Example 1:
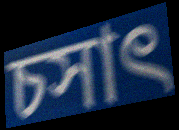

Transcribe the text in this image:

চসাৎ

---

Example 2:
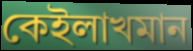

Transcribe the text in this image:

কেইলাখমান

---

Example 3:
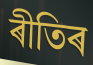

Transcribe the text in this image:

ৰীতিৰ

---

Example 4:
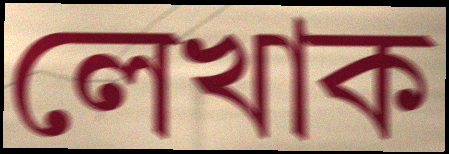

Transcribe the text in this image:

লেখাক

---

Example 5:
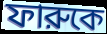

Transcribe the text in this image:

ফাৰুকে